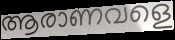
ആരാണവളെ